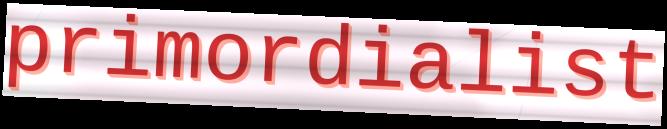
primordialist